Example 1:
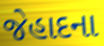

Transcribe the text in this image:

જેહાદના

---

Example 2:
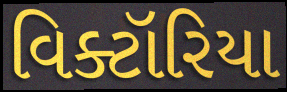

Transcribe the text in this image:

વિક્ટૉરિયા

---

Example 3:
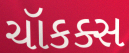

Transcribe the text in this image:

ચૉકક્સ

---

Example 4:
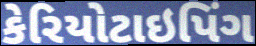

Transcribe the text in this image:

કેરિયોટાઇપિંગ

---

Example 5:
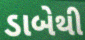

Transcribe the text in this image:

ડાબેથી